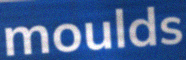
moulds